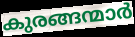
കുരങ്ങന്മാർ